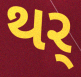
થર્